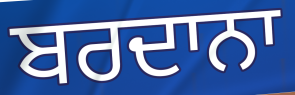
ਬਰਦਾਨਾ